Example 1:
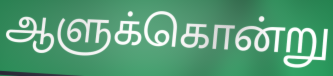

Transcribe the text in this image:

ஆளுக்கொன்று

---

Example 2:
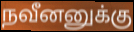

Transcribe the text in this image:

நவீனனுக்கு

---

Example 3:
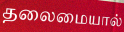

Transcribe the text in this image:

தலைமையால்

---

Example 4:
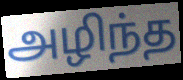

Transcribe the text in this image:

அழிந்த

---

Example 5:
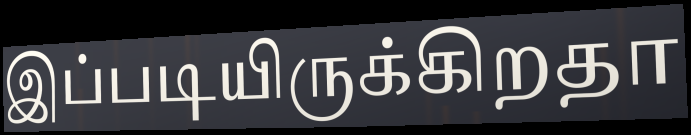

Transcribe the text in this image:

இப்படியிருக்கிறதா